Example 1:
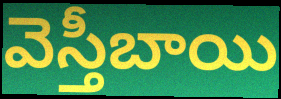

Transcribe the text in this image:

వెస్తీబాయి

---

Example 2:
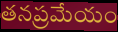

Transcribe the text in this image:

తనప్రమేయం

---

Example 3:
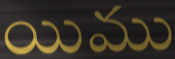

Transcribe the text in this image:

యిము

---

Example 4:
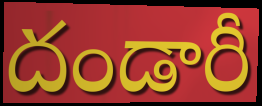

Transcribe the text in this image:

దండారీ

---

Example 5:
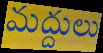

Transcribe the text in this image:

మద్దులు